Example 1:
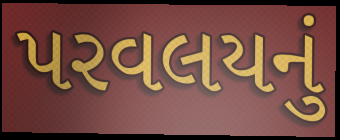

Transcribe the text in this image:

પરવલયનું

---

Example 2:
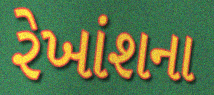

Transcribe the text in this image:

રેખાંશના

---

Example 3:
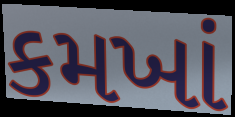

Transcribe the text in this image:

કમખાં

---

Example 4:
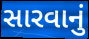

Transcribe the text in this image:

સારવાનું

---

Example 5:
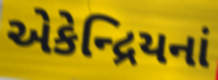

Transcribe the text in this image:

એકેન્દ્રિયનાં